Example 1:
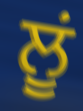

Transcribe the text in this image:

ਲੂਂ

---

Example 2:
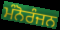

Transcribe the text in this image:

ਮੰਨੋਰੰਜਨ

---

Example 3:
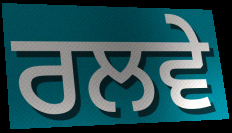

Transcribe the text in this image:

ਰਲਵੇ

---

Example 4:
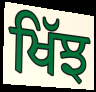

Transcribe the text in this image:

ਖਿੱਝ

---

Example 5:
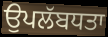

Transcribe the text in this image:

ਉਪਲੱਬਧਤਾ